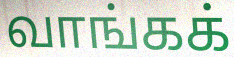
வாங்கக்